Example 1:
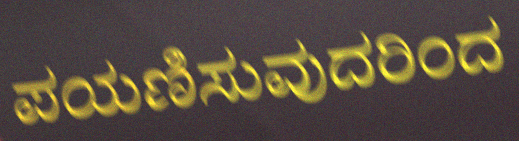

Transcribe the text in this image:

ಪಯಣಿಸುವುದರಿಂದ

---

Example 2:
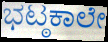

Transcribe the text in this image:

ಭಟ್ಠಕಾಲೇ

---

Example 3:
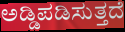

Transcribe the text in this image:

ಅಡ್ಡಿಪಡಿಸುತ್ತದೆ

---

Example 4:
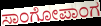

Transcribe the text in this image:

ಸಾಂಗೋಪಾಂಗ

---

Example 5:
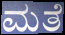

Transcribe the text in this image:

ಮತೆ